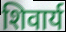
शिवार्य